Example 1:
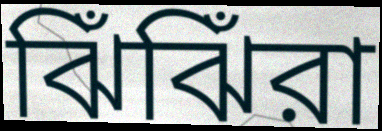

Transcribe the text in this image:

ঝিঁঝিঁরা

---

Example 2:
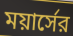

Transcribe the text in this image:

ময়ার্সের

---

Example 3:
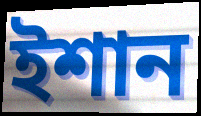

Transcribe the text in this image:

ইশান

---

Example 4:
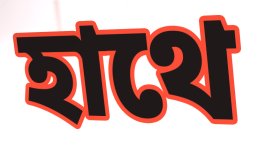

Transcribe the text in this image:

হাথে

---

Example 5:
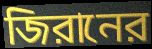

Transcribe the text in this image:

জিরানের